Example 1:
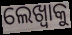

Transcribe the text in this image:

ଲେଖ୍ବାକୁ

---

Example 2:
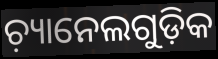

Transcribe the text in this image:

ଚ଼୍ୟାନେଲଗୁଡ଼ିକ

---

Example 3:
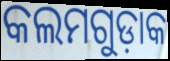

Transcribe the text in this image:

କଲମଗୁଡ଼ାକ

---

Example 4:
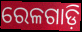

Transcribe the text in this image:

ରେଳଗାଡ଼ି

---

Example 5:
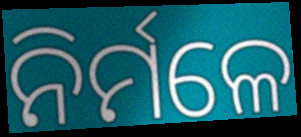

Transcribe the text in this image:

ନିର୍ମଳେ